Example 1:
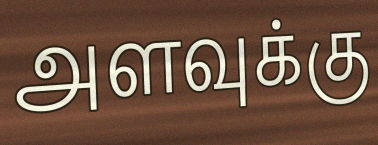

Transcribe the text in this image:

அளவுக்கு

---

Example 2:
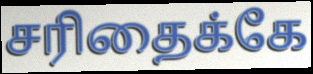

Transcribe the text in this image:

சரிதைக்கே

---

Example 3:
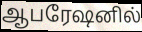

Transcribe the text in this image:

ஆபரேஷனில்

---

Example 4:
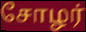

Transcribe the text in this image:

சோழர்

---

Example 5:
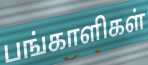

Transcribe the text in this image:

பங்காளிகள்